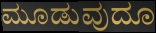
ಮೂಡುವುದೂ